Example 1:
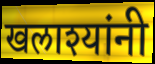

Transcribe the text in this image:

खलाश्यांनी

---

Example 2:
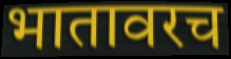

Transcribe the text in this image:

भातावरच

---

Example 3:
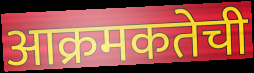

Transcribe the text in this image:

आक्रमकतेची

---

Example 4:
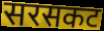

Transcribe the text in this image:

सरसकट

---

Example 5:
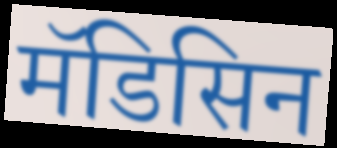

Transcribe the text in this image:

मॅडिसिन